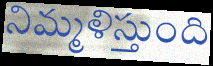
నిమ్మళిస్తుంది